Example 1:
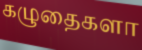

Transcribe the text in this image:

கழுதைகளா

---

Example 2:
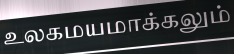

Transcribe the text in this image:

உலகமயமாக்கலும்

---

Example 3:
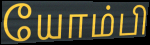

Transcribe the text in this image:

யோம்பி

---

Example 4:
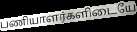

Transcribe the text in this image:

பணியாளர்களிடையே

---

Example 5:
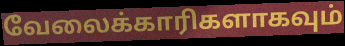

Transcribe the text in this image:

வேலைக்காரிகளாகவும்